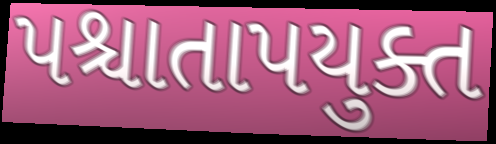
પશ્ચાતાપયુક્ત